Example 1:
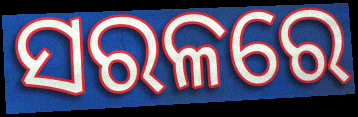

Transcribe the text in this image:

ସରଳରେ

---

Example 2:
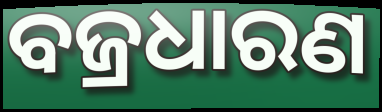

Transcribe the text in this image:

ବଜ୍ରଧାରଣ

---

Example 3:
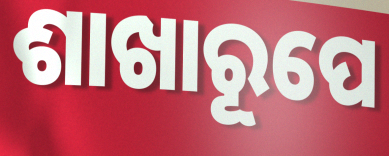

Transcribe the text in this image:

ଶାଖାରୂପେ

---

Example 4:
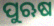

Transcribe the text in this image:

ପୁଋଷ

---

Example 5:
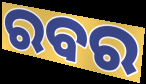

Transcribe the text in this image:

ରବର